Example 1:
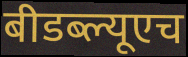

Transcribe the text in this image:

बीडब्ल्यूएच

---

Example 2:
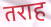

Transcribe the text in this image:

तराह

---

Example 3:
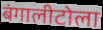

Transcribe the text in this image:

बंगालीटोला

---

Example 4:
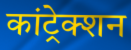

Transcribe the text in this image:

कांट्रेक्शन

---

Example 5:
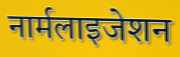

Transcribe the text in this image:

नार्मलाइजेशन